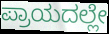
ಪ್ರಾಯದಲ್ಲೇ